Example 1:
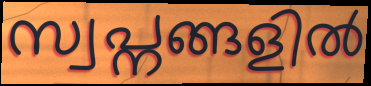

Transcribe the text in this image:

സ്വപ്നങ്ങളിൽ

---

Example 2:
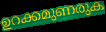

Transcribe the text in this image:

ഉറക്കമുണരുക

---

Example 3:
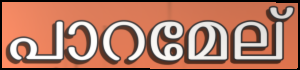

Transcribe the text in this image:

പാറമേല്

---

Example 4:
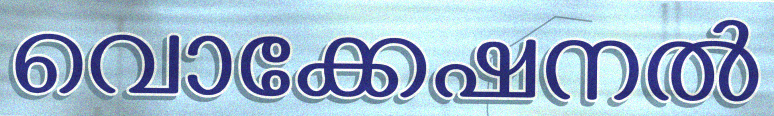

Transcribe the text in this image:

വൊക്കേഷനൽ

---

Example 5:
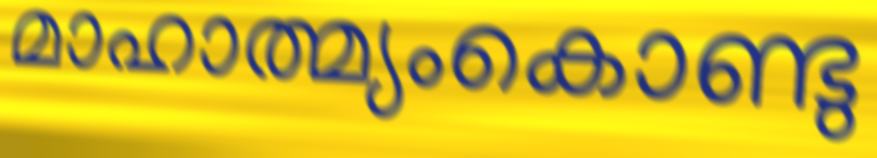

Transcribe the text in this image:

മാഹാത്മ്യംകൊണ്ടു